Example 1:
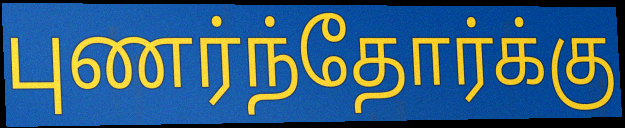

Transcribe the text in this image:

புணர்ந்தோர்க்கு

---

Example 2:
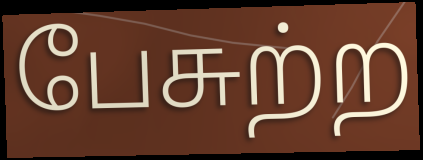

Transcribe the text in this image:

பேசுற்ற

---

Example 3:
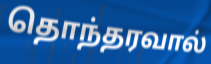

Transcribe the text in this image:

தொந்தரவால்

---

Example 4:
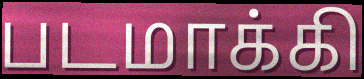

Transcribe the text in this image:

படமாக்கி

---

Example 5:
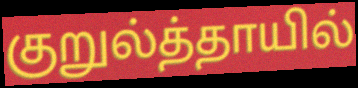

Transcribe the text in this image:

குறுல்த்தாயில்